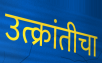
उत्क्रांतीचा